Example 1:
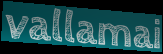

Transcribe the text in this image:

vallamai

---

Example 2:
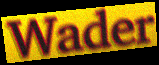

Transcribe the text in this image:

Wader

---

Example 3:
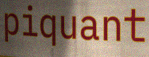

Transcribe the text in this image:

piquant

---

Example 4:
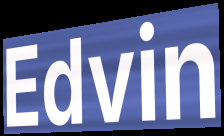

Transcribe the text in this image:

Edvin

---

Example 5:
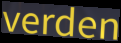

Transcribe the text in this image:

verden